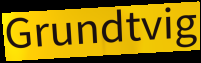
Grundtvig